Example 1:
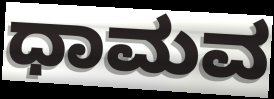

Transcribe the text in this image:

ಧಾಮವ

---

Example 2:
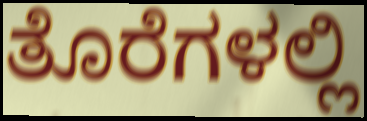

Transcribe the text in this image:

ತೊರೆಗಳಲ್ಲಿ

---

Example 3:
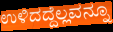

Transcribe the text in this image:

ಉಳಿದದ್ದೆಲ್ಲವನ್ನೂ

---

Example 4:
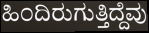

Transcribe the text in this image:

ಹಿಂದಿರುಗುತ್ತಿದ್ದೆವು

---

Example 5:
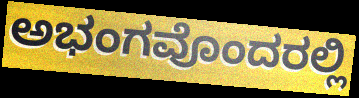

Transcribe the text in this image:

ಅಭಂಗವೊಂದರಲ್ಲಿ